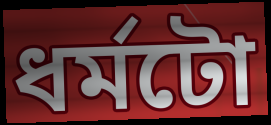
ধৰ্মটো